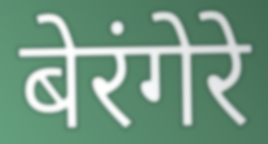
बेरंगेरे